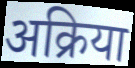
अक्रिया